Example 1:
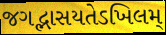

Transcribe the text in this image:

જગદ્ભાસયતેઽખિલમ્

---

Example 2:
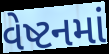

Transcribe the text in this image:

વેષ્ટનમાં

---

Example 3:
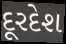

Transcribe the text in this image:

દૂરદેશ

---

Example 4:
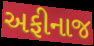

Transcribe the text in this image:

અફીનાજ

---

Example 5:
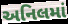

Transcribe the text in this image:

અનિલમાં